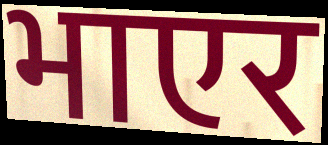
भाएर